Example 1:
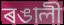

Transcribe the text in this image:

ৰঙালী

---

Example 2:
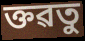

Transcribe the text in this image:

ক্তৱতু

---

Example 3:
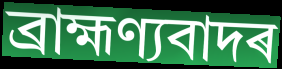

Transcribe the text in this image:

ব্ৰাহ্মণ্যবাদৰ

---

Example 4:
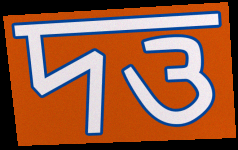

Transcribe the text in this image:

দত্ত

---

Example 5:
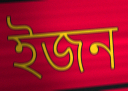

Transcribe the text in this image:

ইজন